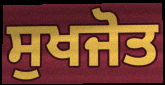
ਸੁਖਜੋਤ